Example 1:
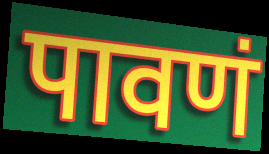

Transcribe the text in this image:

पावणं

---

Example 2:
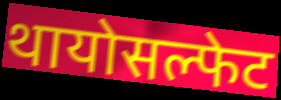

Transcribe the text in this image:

थायोसल्फेट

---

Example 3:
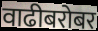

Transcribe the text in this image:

वाढीबरोबर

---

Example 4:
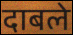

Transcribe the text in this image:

दाबले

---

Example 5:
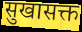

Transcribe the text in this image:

सुखासक्त